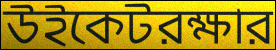
উইকেটরক্ষার